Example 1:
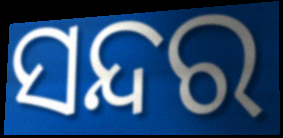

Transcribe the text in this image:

ସନ୍ଦର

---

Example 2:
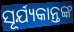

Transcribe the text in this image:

ସୂର୍ଯ୍ୟକାନ୍ତଙ୍କ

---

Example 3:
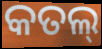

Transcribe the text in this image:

କତଲ୍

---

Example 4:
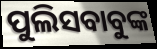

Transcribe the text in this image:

ପୁଲିସବାବୁଙ୍କ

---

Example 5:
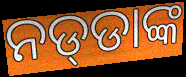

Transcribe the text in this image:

ନଡ୍‌ଡାଙ୍କ